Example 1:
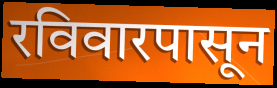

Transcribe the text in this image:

रविवारपासून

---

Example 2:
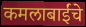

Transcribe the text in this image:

कमलाबाईंचे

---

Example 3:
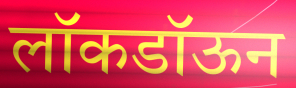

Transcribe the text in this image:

लॉकडॉऊन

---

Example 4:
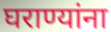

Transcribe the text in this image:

घराण्यांना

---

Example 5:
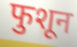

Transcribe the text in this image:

फुशून